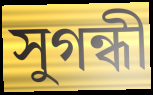
সুগন্ধী